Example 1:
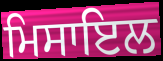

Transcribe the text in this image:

ਮਿਸਾਇਲ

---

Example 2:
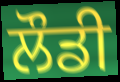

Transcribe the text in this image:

ਲੌਡੀ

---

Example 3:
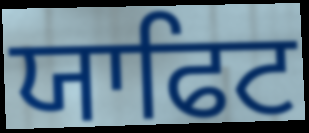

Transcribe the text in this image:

ਯਾਫਿਟ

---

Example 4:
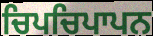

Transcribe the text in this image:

ਚਿਪਚਿਪਾਪਨ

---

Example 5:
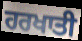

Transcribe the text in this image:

ਹਰਖਾਤੀ